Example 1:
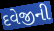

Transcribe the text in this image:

દવેજીની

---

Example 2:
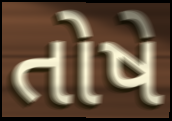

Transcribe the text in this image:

તોષે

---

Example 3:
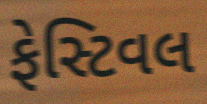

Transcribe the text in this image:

ફેસ્ટિવલ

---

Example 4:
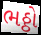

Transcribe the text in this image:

ભઠ્ઠો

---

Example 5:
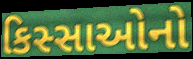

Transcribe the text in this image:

કિસ્સાઓનો